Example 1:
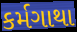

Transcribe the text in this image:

કર્મગાથા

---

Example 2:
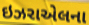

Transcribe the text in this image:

ઇઝરાએલના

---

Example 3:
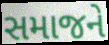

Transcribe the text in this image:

સમાજને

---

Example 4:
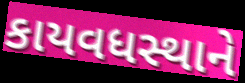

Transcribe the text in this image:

કાયવધસ્થાને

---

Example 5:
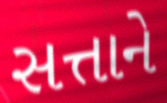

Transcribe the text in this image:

સત્તાને